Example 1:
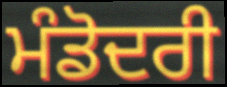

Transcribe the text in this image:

ਮੰਡੋਦਰੀ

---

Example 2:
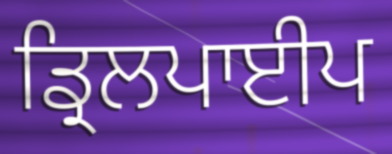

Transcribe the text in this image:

ਡ੍ਰਿਲਪਾਈਪ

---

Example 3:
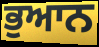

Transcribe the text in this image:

ਭੁਆਨ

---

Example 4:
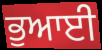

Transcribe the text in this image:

ਭੁਆਈ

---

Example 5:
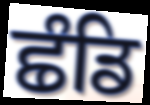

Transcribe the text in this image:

ਛੰਡਿ